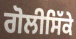
ਗੋਲੀਸਿੱਕੇ